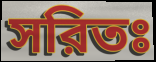
সরিতঃ